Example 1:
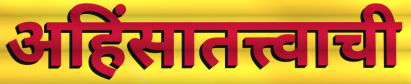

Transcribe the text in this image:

अहिंसातत्त्वाची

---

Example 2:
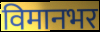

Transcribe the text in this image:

विमानभर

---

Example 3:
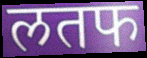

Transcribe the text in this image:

लतफ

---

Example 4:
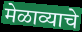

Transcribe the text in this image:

मेळाव्याचे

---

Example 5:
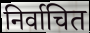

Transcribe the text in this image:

निर्वाचित